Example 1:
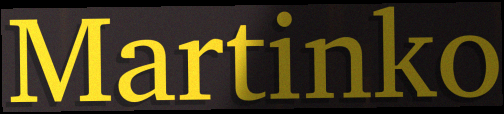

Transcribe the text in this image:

Martinko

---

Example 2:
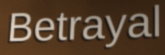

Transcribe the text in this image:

Betrayal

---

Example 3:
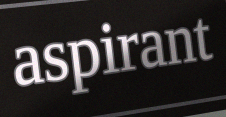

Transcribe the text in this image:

aspirant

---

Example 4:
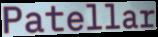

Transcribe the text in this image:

Patellar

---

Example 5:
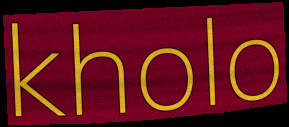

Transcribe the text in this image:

kholo